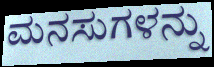
ಮನಸುಗಳನ್ನು